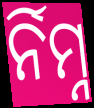
ର୍ନିମ୍ନ